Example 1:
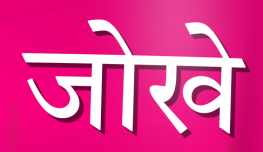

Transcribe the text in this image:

जोखे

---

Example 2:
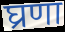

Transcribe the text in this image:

घ्रणा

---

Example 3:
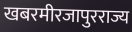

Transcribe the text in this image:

खबरमीरजापुरराज्य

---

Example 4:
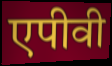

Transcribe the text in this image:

एपीवी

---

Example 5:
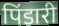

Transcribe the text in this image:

पिंडारी